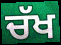
ਚੱਖ